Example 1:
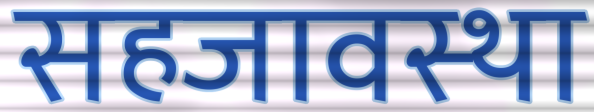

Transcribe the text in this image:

सहजावस्था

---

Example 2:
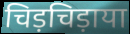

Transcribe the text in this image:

चिड़चिड़ाया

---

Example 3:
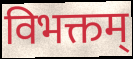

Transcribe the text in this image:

विभक्तम्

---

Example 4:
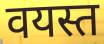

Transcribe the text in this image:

वयस्त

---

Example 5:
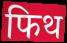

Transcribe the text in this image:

फिथ